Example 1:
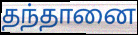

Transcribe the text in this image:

தந்தானை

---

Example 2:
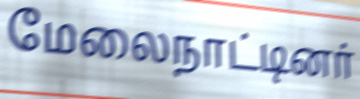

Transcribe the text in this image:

மேலைநாட்டினர்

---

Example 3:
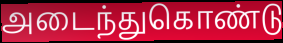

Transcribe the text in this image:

அடைந்துகொண்டு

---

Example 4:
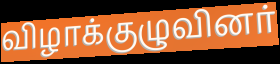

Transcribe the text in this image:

விழாக்குழுவினர்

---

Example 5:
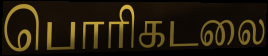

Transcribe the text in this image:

பொரிகடலை